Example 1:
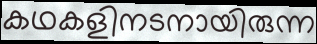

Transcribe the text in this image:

കഥകളിനടനായിരുന്ന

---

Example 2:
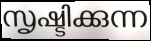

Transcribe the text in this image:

സൃഷ്ടിക്കുന്ന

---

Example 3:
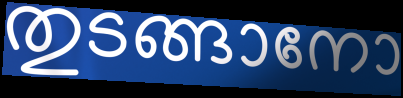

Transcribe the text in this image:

തുടങ്ങാനോ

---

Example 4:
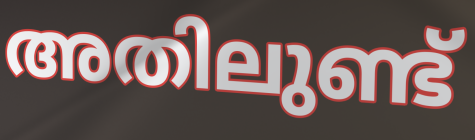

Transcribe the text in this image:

അതിലുണ്ട്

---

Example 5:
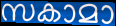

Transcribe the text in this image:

സകാമാ